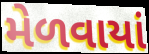
મેળવાયાં